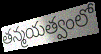
తన్మయత్వంలో